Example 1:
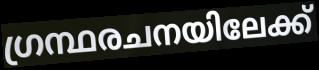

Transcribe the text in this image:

ഗ്രന്ഥരചനയിലേക്ക്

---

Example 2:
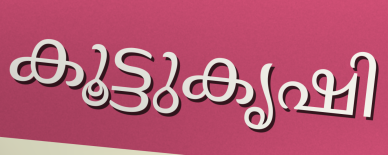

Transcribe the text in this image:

കൂട്ടുകൃഷി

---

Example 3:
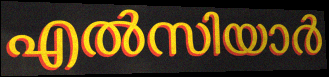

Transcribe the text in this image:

എൽസിയാർ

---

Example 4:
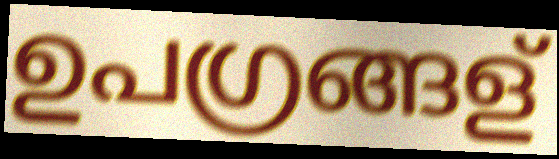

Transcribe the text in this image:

ഉപഗ്രങ്ങള്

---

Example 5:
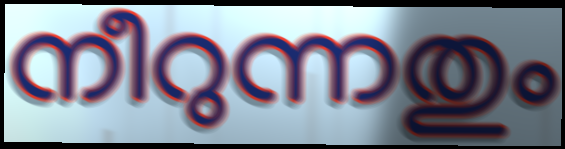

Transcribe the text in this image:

നീറുന്നതും